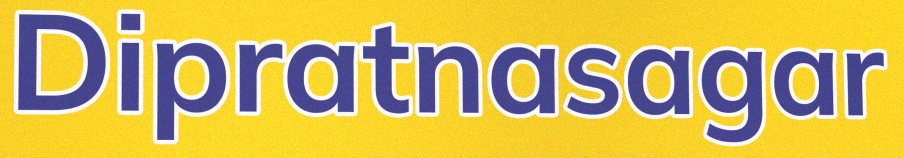
Dipratnasagar